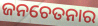
ଜନଚେତନାର